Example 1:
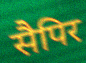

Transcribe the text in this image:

सैपिर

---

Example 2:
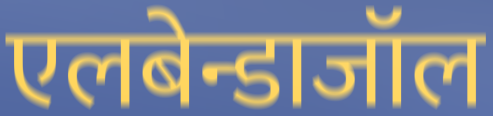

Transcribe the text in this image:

एलबेन्डाजॉल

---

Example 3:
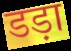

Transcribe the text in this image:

डड़ा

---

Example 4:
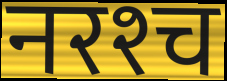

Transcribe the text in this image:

नरश्च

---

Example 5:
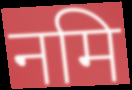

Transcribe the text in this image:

नमि